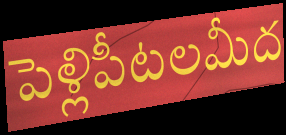
పెళ్లిపీటలమీద